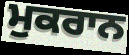
ਮੁਕਰਾਨ